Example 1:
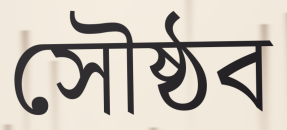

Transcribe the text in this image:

সৌষ্ঠব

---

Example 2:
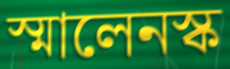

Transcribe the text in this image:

স্মালেনস্ক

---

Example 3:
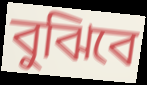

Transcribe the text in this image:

বুঝিবে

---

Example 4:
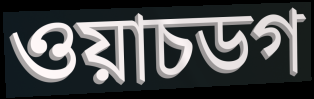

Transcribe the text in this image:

ওয়াচডগ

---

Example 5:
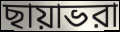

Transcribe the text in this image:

ছায়াভরা